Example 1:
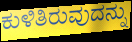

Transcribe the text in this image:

ಕುಳಿತಿರುವುದನ್ನು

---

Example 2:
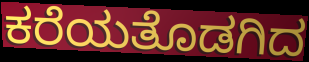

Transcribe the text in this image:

ಕರೆಯತೊಡಗಿದ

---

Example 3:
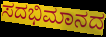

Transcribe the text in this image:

ಸದಭಿಮಾನದ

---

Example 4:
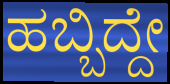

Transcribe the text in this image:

ಹಬ್ಬಿದ್ದೇ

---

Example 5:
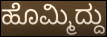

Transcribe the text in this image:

ಹೊಮ್ಮಿದ್ದು